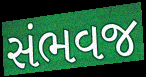
સંભવજ